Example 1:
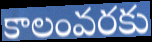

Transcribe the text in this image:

కాలంవరకు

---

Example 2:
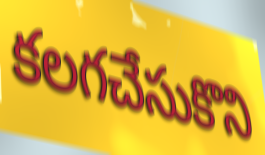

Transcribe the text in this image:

కలగచేసుకొని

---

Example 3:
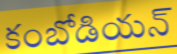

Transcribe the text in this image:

కంబోడియన్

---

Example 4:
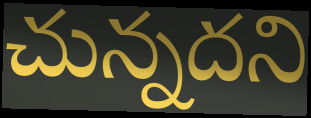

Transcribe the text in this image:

చున్నదని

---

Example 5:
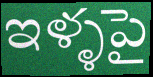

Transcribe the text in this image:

ఇళ్ళపై